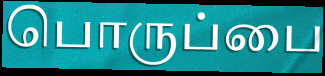
பொருப்பை